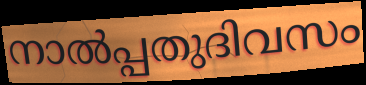
നാൽപ്പതുദിവസം